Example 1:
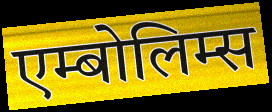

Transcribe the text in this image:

एम्बोलिम्स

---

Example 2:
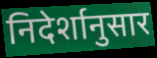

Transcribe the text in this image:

निदेर्शानुसार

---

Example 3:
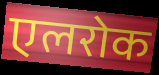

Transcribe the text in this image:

एलरोक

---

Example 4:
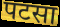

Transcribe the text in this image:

पटसा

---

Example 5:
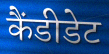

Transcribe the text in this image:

कैंडीडेट